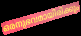
ഒരനുഭവമായിരിക്കും